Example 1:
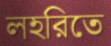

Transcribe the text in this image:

লহরিতে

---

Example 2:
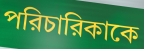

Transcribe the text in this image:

পরিচারিকাকে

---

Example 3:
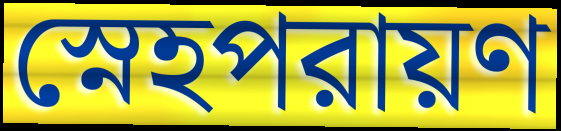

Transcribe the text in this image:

স্নেহপরায়ণ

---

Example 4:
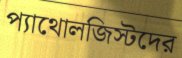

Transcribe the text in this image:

প্যাথোলজিস্টদের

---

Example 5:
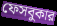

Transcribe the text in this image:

ফেসবুকার